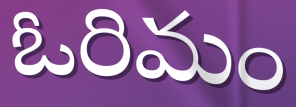
ఓరిమం